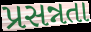
પ્રસન્નતા